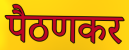
पैठणकर